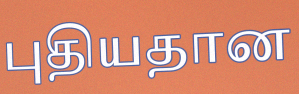
புதியதான